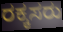
ರಕ್ಕಸರು